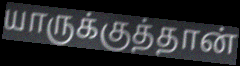
யாருக்குத்தான்